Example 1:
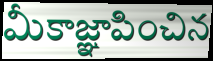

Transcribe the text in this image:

మీకాజ్ఞాపించిన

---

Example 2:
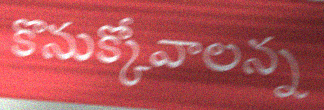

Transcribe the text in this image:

కొనుక్కోవాలన్న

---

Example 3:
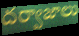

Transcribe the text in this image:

దర్వాజాలు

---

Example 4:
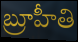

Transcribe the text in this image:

బ్రూహీతి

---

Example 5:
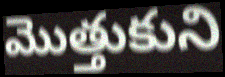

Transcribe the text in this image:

మొత్తుకుని